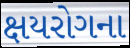
ક્ષયરોગના